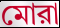
মোরা